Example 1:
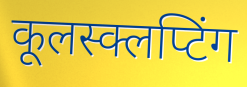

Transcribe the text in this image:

कूलस्क्लप्टिंग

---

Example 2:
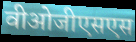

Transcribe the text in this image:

वीओजीएसएस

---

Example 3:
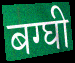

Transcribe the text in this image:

बग्घी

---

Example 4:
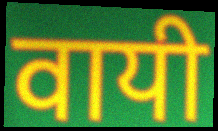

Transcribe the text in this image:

वायी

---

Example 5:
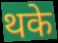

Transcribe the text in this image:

थके